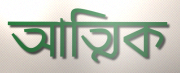
আত্মিক